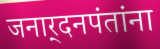
जनार्दनपंतांना